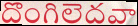
దొంగిలెదవా